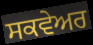
ਸਕਵੇਅਰ